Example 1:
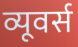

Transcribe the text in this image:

व्यूवर्स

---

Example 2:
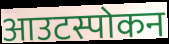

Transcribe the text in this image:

आउटस्पोकन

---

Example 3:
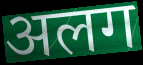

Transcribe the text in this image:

अलग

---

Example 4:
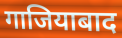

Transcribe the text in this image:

गाजियाबाद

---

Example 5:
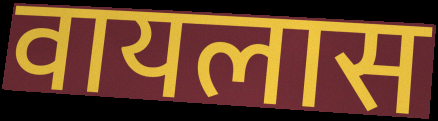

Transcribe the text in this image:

वायलास